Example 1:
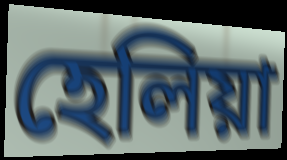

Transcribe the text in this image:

হেলিয়া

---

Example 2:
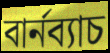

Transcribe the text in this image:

বার্নব্যাচ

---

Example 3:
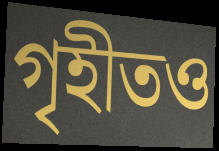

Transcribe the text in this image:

গৃহীতও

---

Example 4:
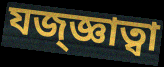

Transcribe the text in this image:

যজ্জ্ঞাত্বা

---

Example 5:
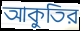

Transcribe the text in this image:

আকুতির